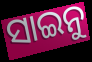
ସାଇନୁ